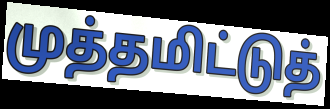
முத்தமிட்டுத்